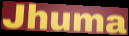
Jhuma